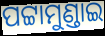
ପଟ୍ଟାମୁଣ୍ଡାଇ